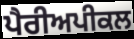
ਪੈਰੀਅਪੀਕਲ